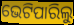
ଭେଟିପାରିଲୁ